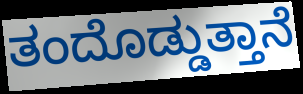
ತಂದೊಡ್ಡುತ್ತಾನೆ